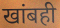
खांबही